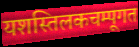
यशस्तिलकचम्पूगत